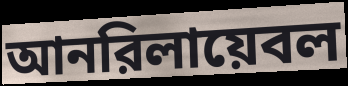
আনরিলায়েবল